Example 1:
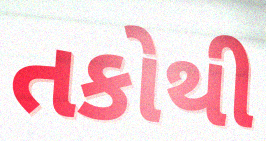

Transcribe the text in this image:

તકોથી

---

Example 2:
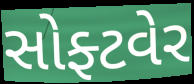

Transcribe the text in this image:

સોફ્ટવેર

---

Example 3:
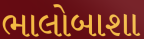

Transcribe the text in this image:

ભાલોબાશા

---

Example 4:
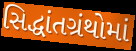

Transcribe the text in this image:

સિદ્ધાંતગ્રંથોમાં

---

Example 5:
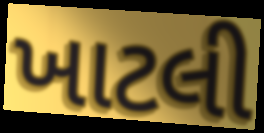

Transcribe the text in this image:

ખાટલી